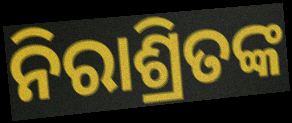
ନିରାଶ୍ରିତଙ୍କ